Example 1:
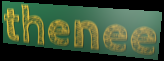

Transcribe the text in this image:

thenee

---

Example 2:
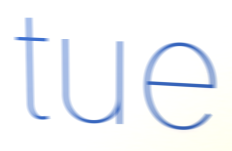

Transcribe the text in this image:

tue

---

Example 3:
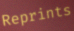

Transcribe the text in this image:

Reprints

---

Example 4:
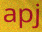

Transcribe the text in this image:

apj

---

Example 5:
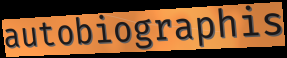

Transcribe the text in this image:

autobiographis